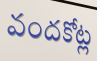
వందకోట్ల